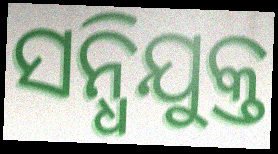
ସନ୍ଧିଯୁକ୍ତ